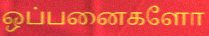
ஒப்பனைகளோ